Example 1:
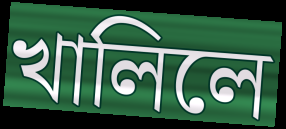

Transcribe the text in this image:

খালিলে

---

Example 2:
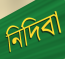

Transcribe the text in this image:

নিদিবা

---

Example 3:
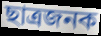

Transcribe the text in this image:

ছাত্ৰজনক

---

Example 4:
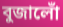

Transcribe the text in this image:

বুজালোঁ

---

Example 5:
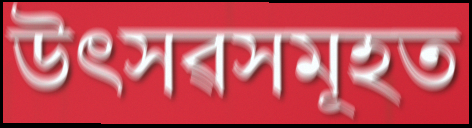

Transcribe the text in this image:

উৎসৱসমূহত